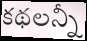
కథలన్నీ